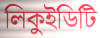
লিকুইডিটি